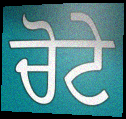
ਚੋਟੇ